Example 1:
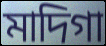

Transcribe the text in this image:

মাদিগা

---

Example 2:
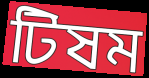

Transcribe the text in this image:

টিষম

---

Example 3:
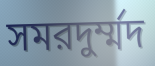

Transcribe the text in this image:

সমরদুর্ম্মদ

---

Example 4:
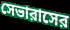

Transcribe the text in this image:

সেভারাসের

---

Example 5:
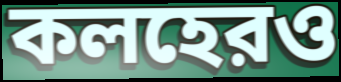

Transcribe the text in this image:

কলহেরও